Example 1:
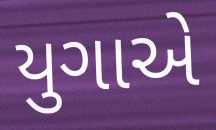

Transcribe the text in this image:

યુગાએ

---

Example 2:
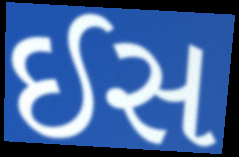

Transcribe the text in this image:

ઈસ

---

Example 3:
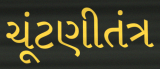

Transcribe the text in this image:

ચૂંટણીતંત્ર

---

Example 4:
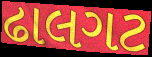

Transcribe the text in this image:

ઢાલગટ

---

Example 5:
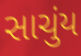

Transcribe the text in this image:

સાચુંય